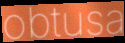
obtusa